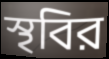
স্থবির